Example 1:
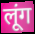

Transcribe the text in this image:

लूंग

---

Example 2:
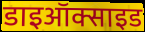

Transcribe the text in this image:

डाइऑक्साइड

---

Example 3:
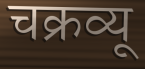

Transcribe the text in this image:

चक्रव्यू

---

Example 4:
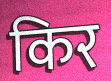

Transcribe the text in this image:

किर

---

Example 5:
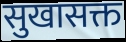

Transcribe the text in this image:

सुखासक्त